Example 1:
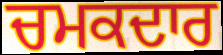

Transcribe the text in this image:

ਚਮਕਦਾਰ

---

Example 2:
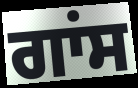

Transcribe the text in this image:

ਗਾਂਸ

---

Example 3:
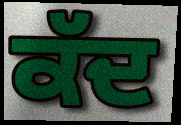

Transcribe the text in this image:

ਕੱਦ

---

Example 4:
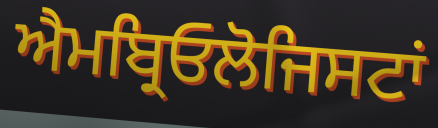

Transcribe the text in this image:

ਐਮਬ੍ਰਿਓਲੋਜਿਸਟਾਂ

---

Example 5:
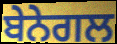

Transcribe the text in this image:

ਬੇਨੇਗਲ